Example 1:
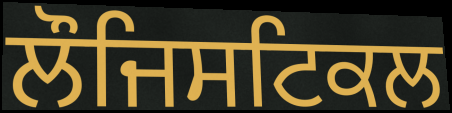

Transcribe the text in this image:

ਲੌਜਿਸਟਿਕਲ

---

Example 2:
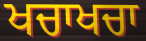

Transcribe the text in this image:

ਖਚਾਖਚਾ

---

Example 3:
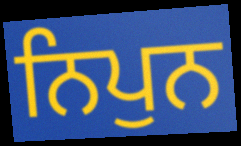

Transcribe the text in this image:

ਨਿਪੁਨ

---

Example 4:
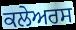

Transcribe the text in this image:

ਕਲੇਅਰਸ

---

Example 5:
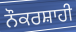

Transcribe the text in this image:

ਨੌਕਰਸ਼ਾਹੀ